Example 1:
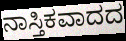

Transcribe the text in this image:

ನಾಸ್ತಿಕವಾದದ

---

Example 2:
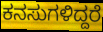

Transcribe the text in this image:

ಕನಸುಗಳಿದ್ದರೆ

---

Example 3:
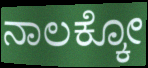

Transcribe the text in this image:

ನಾಲಕ್ಕೋ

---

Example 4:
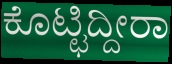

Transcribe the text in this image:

ಕೊಟ್ಟಿದ್ದೀರಾ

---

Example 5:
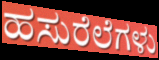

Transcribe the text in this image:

ಹಸುರೆಲೆಗಳು